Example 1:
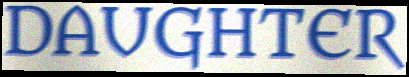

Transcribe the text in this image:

DAUGHTER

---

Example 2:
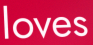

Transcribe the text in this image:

loves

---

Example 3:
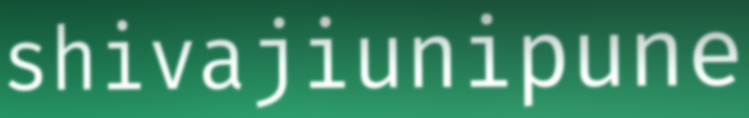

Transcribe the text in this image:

shivajiunipune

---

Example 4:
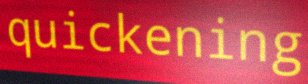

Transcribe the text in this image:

quickening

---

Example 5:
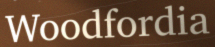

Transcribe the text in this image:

Woodfordia